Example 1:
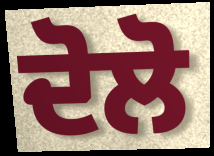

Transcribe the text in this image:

ਦੋਲੋ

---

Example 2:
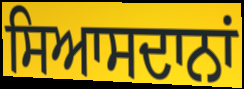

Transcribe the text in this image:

ਸਿਆਸਦਾਨਾਂ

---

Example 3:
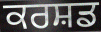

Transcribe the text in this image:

ਕਰਸ਼ਡ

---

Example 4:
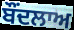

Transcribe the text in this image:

ਬੌਂਦਲਾਅ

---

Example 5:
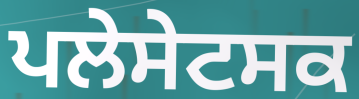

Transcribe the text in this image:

ਪਲੇਸੇਟਸਕ